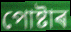
পোষ্টাৰ